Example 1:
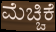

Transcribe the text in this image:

ಮೆಚ್ಚಿಕೆ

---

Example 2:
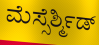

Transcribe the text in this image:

ಮೆಸ್ಸೆರ್ಶ್ಮಿಡ್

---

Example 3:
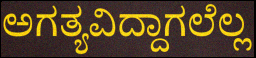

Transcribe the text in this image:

ಅಗತ್ಯವಿದ್ದಾಗಲೆಲ್ಲ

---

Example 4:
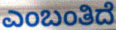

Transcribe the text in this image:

ಎಂಬಂತಿದೆ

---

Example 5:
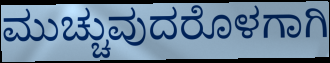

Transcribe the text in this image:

ಮುಚ್ಚುವುದರೊಳಗಾಗಿ